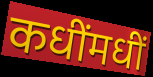
कधींमधीं